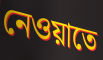
নেওয়াতে